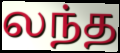
லந்த